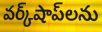
వర్క్‌షాప్‌లను